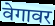
वेगावर